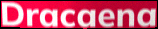
Dracaena